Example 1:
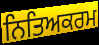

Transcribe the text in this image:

ਨਿਤਿਅਕਰਮ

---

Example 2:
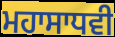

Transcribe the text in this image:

ਮਹਾਸਾਧਵੀ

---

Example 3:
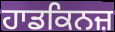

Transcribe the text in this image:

ਹਾਡਕਿਨਜ਼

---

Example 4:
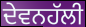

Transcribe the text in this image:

ਦੇਵਨਹੱਲੀ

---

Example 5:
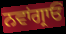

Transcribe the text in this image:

ਨਵਾਂਗ੍ਰਾਓਂ